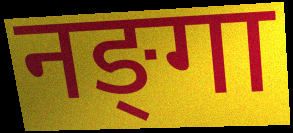
नङ्गा